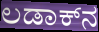
ಲಡಾಕ್‌ನ